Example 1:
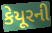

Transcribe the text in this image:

કેયૂરની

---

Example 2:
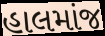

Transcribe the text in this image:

હાલમાંજ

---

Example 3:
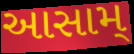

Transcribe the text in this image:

આસામ્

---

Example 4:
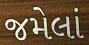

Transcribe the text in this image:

જમેલાં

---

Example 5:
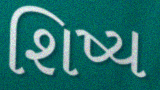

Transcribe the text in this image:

શિષ્ય